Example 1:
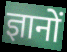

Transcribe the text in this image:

ज्ञानों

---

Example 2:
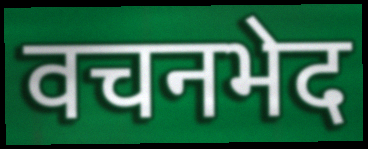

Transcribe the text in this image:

वचनभेद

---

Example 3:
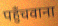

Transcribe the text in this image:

पहुँचवाना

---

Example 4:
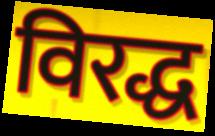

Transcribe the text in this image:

विरद्ध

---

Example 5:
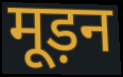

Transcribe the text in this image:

मूड़न